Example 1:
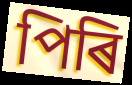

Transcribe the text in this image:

পিৰি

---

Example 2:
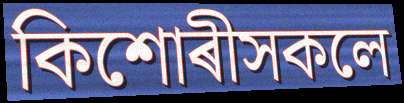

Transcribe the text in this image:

কিশোৰীসকলে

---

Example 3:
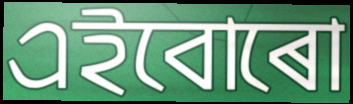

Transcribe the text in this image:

এইবোৰো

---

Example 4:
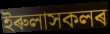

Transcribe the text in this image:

ইৰুলাসকলৰ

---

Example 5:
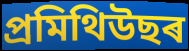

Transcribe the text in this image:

প্ৰমিথিউছৰ